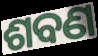
ଶବଣ